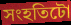
সংহতিটো